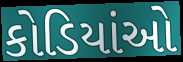
કોડિયાંઓ